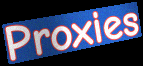
Proxies